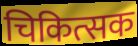
चिकित्‍सक